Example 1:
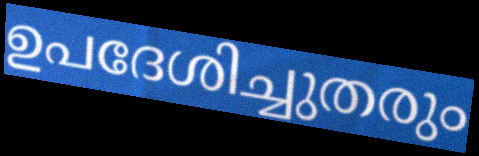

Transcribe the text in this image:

ഉപദേശിച്ചുതരും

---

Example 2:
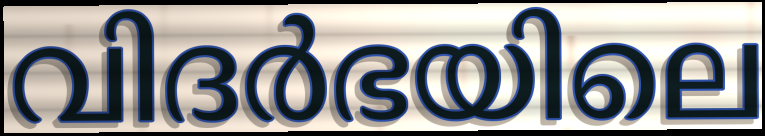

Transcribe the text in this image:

വിദർഭയിലെ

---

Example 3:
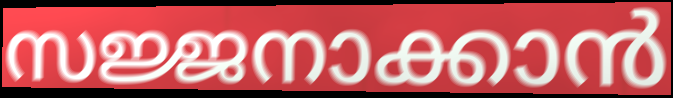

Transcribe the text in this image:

സജ്ജനാക്കാൻ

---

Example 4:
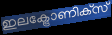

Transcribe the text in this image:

ഇലക്ട്രോണിക്‌സ്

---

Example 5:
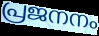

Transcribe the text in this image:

പ്രജനനം